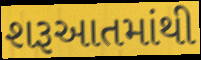
શરૂઆતમાંથી